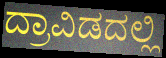
ದ್ರಾವಿಡದಲ್ಲಿ